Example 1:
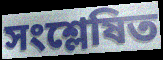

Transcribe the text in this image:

সংশ্লেষিত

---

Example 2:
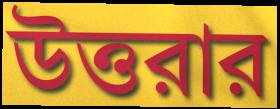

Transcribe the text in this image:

উত্তরার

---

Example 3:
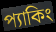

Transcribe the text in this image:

প্যাকিং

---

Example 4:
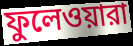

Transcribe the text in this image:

ফুলেওয়ারা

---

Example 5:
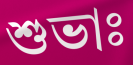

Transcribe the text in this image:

শুভাঃ